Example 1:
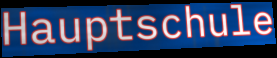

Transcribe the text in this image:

Hauptschule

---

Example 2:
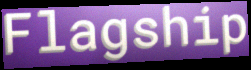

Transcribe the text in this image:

Flagship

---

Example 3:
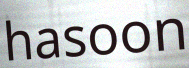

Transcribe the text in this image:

hasoon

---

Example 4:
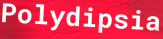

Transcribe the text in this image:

Polydipsia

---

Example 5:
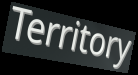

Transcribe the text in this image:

Territory